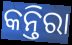
କନ୍ତିରା